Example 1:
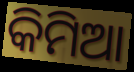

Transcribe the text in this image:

କିମିଆ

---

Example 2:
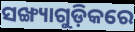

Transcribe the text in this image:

ସଙ୍ଖ୍ୟାଗୁଡ଼ିକରେ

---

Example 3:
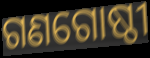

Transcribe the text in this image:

ଗଣଗୋଷ୍ଠୀ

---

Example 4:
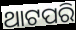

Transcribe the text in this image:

ଥାଟପରି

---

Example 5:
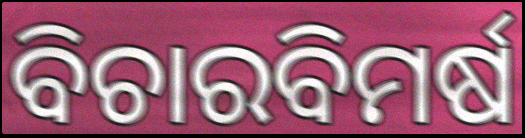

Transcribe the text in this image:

ବିଚାରବିମର୍ଷ